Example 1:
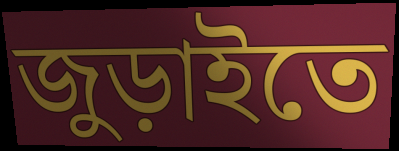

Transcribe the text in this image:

জুড়াইতে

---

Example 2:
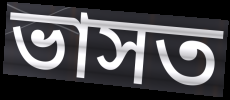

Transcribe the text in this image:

ভাসত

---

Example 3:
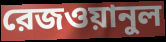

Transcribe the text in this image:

রেজওয়ানুল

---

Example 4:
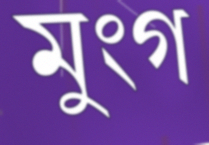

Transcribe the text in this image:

মুংগ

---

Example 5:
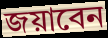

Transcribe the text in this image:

জয়াবেন